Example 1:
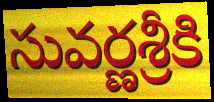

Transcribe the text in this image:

సువర్ణశ్రీకి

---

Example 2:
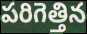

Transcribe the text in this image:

పరిగెత్తిన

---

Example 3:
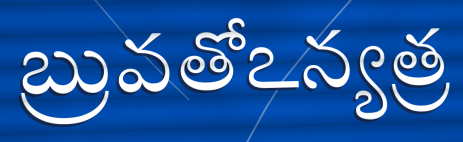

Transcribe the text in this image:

బ్రువతోఽన్యత్ర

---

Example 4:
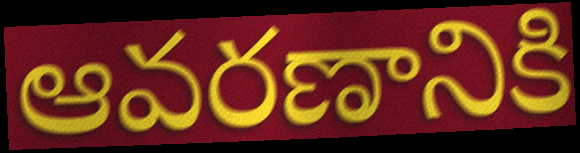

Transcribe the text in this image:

ఆవరణానికి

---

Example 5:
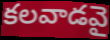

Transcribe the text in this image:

కలవాడవై